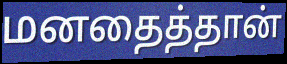
மனதைத்தான்